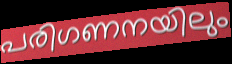
പരിഗണനയിലും